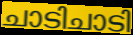
ചാടിചാടി